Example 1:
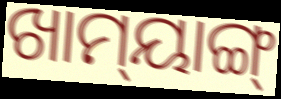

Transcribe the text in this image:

ଖାମ୍‌ୟାଙ୍ଗ୍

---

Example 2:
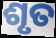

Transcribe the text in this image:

ଶୃତ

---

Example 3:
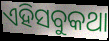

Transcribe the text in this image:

ଏହିସବୁକଥା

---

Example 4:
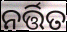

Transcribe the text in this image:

ନର୍ତ୍ତିତ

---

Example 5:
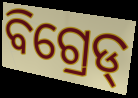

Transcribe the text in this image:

ବିଗ୍ରେଡ୍